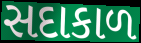
સદાકાળ